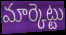
మార్కెట్టు